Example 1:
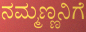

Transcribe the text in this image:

ನಮ್ಮಣ್ಣನಿಗೆ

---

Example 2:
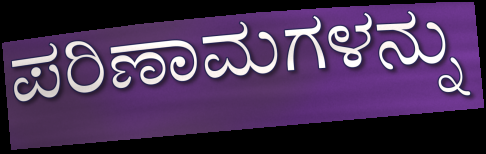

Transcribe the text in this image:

ಪರಿಣಾಮಗಳನ್ನು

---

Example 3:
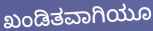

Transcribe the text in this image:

ಖಂಡಿತವಾಗಿಯೂ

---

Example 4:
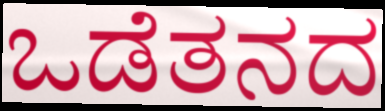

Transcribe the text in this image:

ಒಡೆತನದ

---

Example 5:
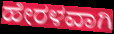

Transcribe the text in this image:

ಹೇರಳವಾಗಿ